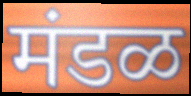
मंडळ